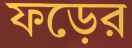
ফড়ের